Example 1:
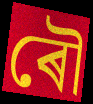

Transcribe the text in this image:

ৰৌ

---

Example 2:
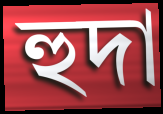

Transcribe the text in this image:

হুদা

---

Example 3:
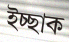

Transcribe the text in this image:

ইচ্ছাক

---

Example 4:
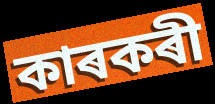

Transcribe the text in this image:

কাৰকৰী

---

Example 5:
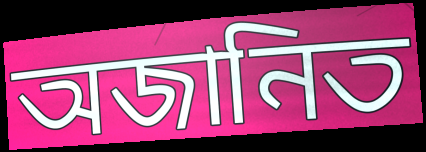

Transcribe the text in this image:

অজানিত